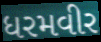
ધરમવીર